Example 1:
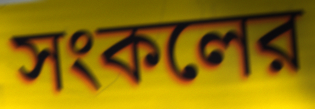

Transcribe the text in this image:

সংকলের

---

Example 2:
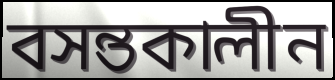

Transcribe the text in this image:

বসন্তকালীন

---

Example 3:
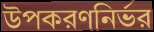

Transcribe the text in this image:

উপকরণনির্ভর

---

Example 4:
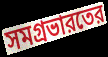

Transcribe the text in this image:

সমগ্রভারতের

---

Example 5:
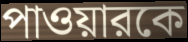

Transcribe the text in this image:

পাওয়ারকে